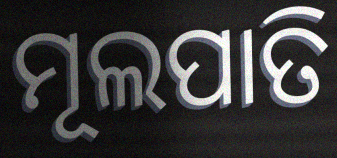
ମୂଲପାତି